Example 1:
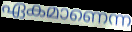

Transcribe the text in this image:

ഏകമാണെന്ന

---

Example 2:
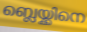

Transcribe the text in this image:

ബ്ലെയ്ക്കിനെ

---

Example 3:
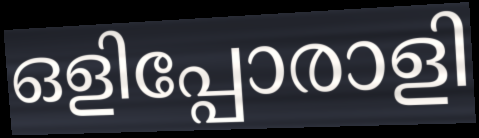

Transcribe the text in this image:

ഒളിപ്പോരാളി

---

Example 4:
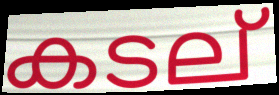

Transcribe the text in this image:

കടല്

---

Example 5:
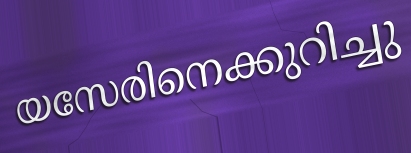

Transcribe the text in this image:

യസേരിനെക്കുറിച്ചു